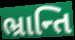
ભ્રાન્તિ